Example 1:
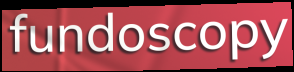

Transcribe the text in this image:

fundoscopy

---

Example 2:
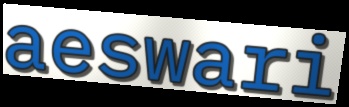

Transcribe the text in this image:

aeswari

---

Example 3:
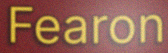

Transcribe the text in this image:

Fearon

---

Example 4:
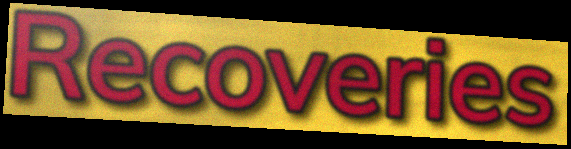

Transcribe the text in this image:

Recoveries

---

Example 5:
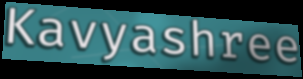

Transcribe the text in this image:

Kavyashree